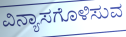
ವಿನ್ಯಾಸಗೊಳಿಸುವ